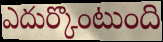
ఎదుర్కొంటుంది